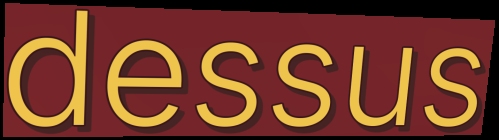
dessus